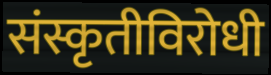
संस्कृतीविरोधी